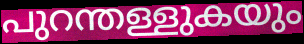
പുറന്തള്ളുകയും